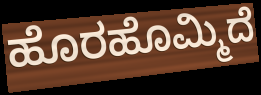
ಹೊರಹೊಮ್ಮಿದೆ